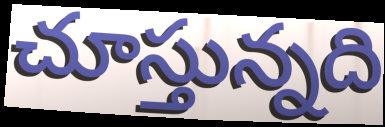
చూస్తున్నది